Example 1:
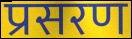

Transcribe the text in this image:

प्रसरण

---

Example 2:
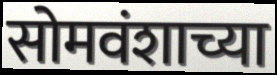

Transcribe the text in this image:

सोमवंशाच्या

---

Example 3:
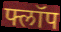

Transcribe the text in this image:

फ्लॉप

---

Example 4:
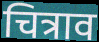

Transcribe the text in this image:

चित्राव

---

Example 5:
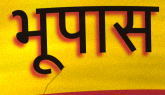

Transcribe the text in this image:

भूपास